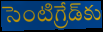
సెంటిగ్రేడ్‌కు